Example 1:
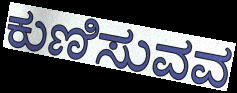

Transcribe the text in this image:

ಕುಣಿಸುವವ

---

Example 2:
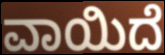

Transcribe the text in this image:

ವಾಯಿದೆ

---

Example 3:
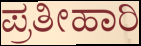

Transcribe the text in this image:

ಪ್ರತೀಹಾರಿ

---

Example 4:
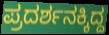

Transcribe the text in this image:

ಪ್ರದರ್ಶನಕ್ಕಿದ್ದ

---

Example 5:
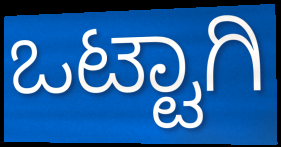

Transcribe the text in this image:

ಒಟ್ಟಾಗಿ